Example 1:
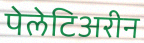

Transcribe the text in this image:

पेलेटिअरीन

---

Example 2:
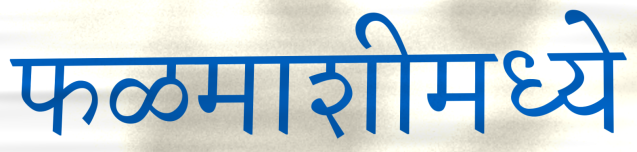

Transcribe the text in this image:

फळमाशीमध्ये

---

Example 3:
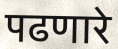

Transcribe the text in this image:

पढणारे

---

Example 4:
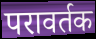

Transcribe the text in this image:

परावर्तक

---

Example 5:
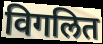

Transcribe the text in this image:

विगलित